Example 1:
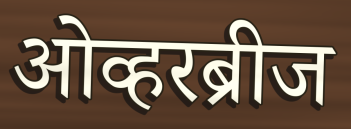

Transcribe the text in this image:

ओव्हरब्रीज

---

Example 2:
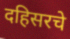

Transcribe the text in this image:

दहिसरचे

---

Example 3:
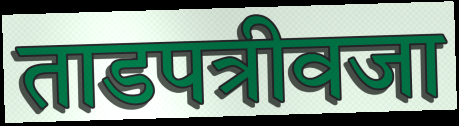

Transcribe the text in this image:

ताडपत्रीवजा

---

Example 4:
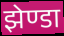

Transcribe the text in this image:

झेण्डा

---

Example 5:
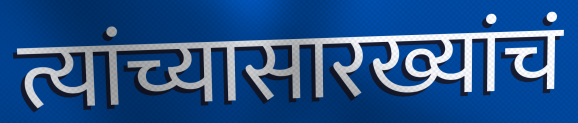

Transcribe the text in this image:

त्यांच्यासारख्यांचं